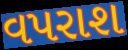
વપરાશ